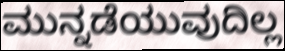
ಮುನ್ನಡೆಯುವುದಿಲ್ಲ